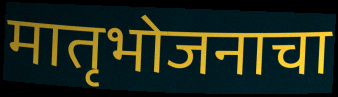
मातृभोजनाचा